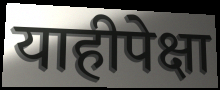
याहीपेक्षा